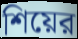
শিয়ের